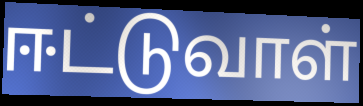
ஈட்டுவாள்